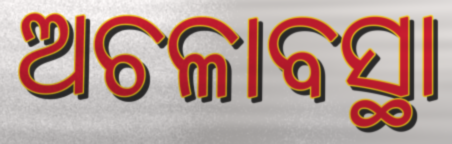
ଅଚଳାବସ୍ଥା